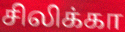
சிலிக்கா